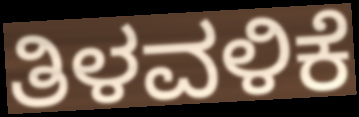
ತಿಳವಳಿಕೆ